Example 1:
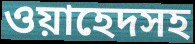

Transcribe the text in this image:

ওয়াহেদসহ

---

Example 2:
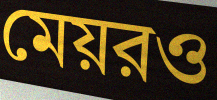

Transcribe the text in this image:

মেয়রও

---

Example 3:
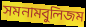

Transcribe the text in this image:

সমনামবুলিজম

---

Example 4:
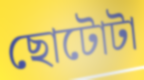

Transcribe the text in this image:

ছোটোটা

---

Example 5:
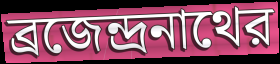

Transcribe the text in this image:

ব্রজেন্দ্রনাথের